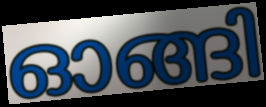
ഓങ്ങി